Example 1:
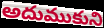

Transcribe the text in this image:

అదుముకుని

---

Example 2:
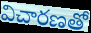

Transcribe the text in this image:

విచారణతో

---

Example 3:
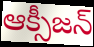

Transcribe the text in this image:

ఆక్సీజన్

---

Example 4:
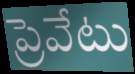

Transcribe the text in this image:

ప్రెవేటు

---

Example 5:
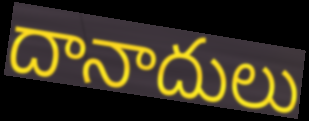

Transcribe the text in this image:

దానాదులు